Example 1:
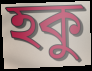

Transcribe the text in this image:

হকু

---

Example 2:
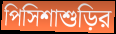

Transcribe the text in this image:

পিসিশাশুড়ির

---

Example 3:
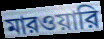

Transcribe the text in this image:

মারওয়ারি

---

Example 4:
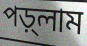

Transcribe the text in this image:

পড়্‌লাম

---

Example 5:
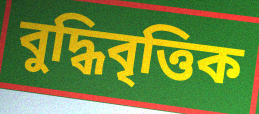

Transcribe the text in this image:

বুদ্ধিবৃত্তিক